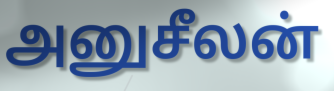
அனுசீலன்